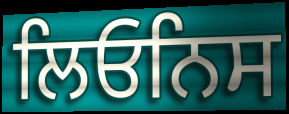
ਲਿਓਨਿਸ